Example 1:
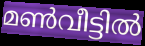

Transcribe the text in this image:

മൺവീട്ടിൽ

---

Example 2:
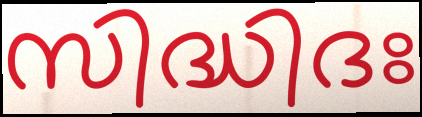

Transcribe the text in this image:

സിദ്ധിദഃ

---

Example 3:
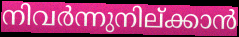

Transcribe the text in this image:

നിവർന്നുനില്ക്കാൻ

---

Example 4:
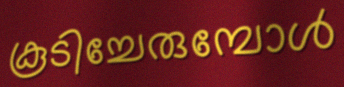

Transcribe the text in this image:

കൂടിച്ചേരുമ്പോൾ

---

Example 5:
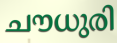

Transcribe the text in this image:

ചൗധുരി